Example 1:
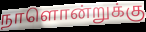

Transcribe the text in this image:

நாளொன்றுக்கு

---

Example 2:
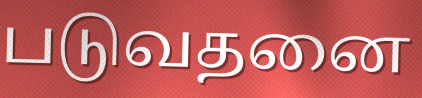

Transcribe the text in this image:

படுவதனை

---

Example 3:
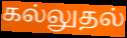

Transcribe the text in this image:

கல்லுதல்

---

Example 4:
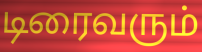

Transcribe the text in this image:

டிரைவரும்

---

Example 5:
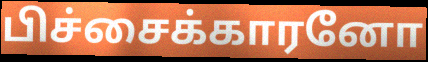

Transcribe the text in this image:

பிச்சைக்காரனோ